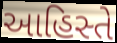
આહિસ્તે